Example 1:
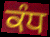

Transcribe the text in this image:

ਕੰਧ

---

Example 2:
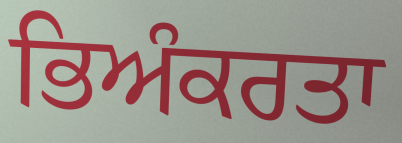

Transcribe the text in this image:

ਭਿਅੰਕਰਤਾ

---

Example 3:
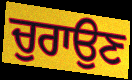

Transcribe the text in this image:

ਚੁਰਾਉਣ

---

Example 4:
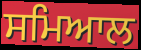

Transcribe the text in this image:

ਸਮਿਆਲ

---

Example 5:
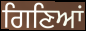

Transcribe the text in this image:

ਗਿਣਿਆਂ